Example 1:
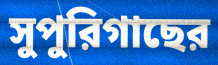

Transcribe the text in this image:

সুপুরিগাছের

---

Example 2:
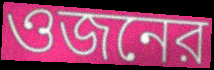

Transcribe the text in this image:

ওজনের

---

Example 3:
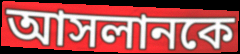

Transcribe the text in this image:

আসলানকে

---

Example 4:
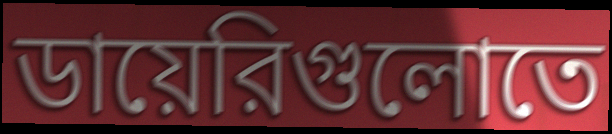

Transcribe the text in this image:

ডায়েরিগুলোতে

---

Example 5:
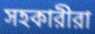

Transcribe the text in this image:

সহকারীরা